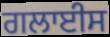
ਗਲਾਈਸ